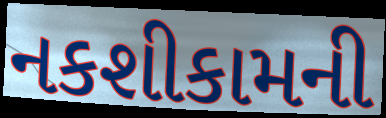
નકશીકામની